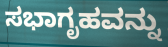
ಸಭಾಗೃಹವನ್ನು